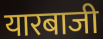
यारबाजी